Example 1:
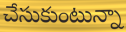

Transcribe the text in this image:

చేసుకుంటున్నా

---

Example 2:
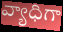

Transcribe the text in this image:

వ్యాధిగా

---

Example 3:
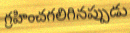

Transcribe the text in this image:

గ్రహించగలిగినప్పుడు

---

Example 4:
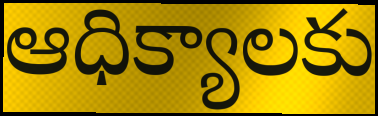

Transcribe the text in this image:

ఆధిక్యాలకు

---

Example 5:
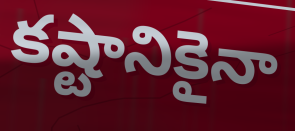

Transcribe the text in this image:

కష్టానికైనా